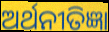
ଅର୍ଥନୀତିଜ୍ଞା